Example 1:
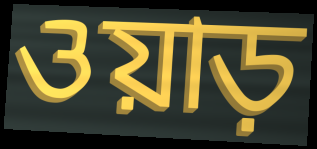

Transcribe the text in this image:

ওয়াড়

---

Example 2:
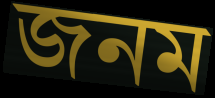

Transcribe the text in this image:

জনম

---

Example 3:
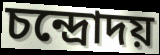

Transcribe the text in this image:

চন্দ্রোদয়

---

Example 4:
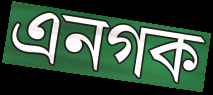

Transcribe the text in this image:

এনগক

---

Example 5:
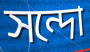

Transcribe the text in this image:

সন্দো